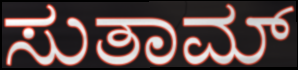
ಸುತಾಮ್